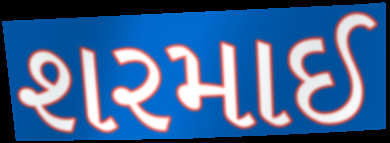
શરમાઈ